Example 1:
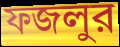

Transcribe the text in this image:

ফজলুর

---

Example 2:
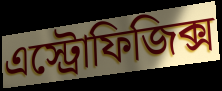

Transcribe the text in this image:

এস্ট্রোফিজিক্স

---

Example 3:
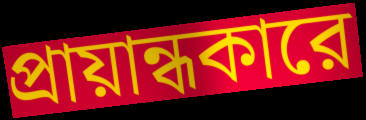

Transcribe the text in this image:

প্রায়ান্ধকারে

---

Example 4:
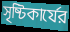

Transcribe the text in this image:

সৃষ্টিকার্যের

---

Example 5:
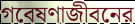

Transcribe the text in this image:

গবেষণাজীবনের